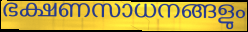
ഭക്ഷണസാധനങ്ങളും